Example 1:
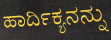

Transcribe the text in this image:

ಹಾರ್ದಿಕ್ಯನನ್ನು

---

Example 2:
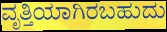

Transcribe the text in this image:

ವೃತ್ತಿಯಾಗಿರಬಹುದು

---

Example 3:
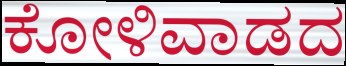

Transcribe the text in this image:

ಕೋಳಿವಾಡದ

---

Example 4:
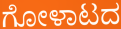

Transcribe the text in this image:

ಗೋಳಾಟದ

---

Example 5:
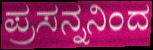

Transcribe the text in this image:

ಪ್ರಸನ್ನನಿಂದ